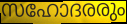
സഹോദരരും